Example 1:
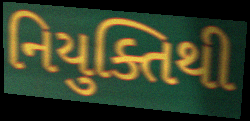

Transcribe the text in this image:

નિયુક્તિથી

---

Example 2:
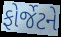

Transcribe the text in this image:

ફોર્જેટને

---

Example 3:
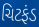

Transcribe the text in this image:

ચિટફંડ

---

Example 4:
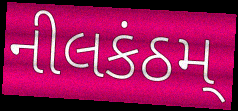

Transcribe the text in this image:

નીલકંઠમ્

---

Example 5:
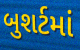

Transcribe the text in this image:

બુશર્ટમાં